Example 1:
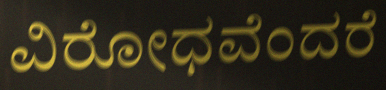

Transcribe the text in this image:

ವಿರೋಧವೆಂದರೆ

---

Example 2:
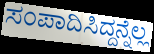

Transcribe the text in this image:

ಸಂಪಾದಿಸಿದ್ದನ್ನೆಲ್ಲ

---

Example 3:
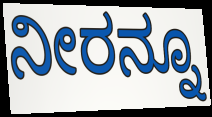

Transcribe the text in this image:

ನೀರನ್ನೂ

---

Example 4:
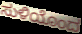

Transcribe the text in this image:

ಸುಳಿಯೊಂದ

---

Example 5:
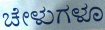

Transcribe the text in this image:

ಚೇಳುಗಳೂ